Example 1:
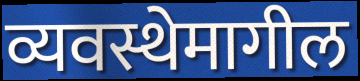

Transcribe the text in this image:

व्यवस्थेमागील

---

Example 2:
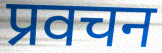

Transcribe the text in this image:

प्रवचन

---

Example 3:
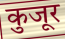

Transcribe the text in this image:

कुजूर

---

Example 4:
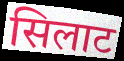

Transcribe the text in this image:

सिलाट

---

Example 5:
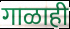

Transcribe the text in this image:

गाळाही